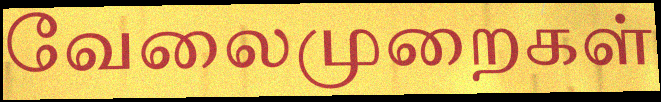
வேலைமுறைகள்